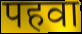
पहवा